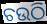
ଚଉଠି